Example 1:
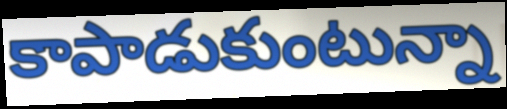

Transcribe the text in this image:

కాపాడుకుంటున్నా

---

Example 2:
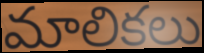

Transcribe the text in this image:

మాలికలు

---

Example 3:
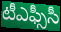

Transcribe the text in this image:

టీఎఫ్సీసీ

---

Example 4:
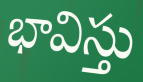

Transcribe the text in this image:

భావిస్తు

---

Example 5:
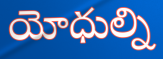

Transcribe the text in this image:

యోధుల్ని